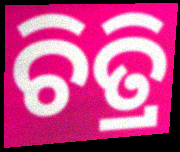
ଚିତ୍ରି